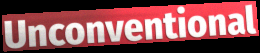
Unconventional